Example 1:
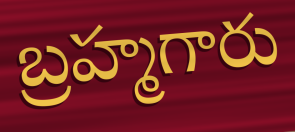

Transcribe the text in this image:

బ్రహ్మగారు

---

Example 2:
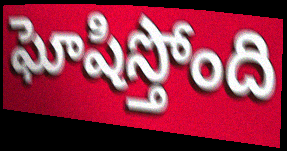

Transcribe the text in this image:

ఘోషిస్తోంది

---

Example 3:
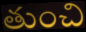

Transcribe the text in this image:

తుంచి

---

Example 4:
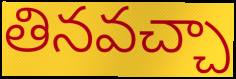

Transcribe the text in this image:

తినవచ్చా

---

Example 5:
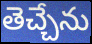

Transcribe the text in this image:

తెచ్చేను